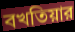
বখতিয়ার